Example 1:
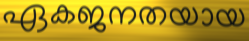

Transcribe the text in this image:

ഏകജനതയായ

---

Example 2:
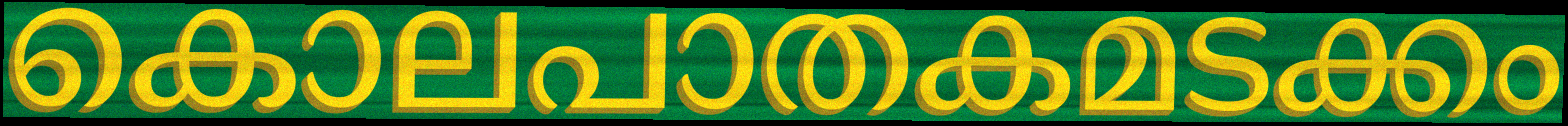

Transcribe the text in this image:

കൊലപാതകമടക്കം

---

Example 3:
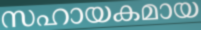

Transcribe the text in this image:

സഹായകമായ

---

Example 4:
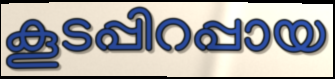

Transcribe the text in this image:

കൂടപ്പിറപ്പായ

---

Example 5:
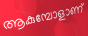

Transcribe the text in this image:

ആകുമ്പോളാണ്